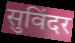
सुविंदर